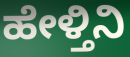
ಹೇಳ್ತಿನಿ